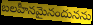
బలహీనమైనందునను